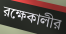
রক্ষেকালীর